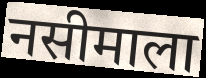
नसीमाला